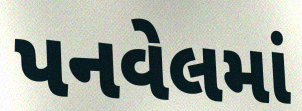
પનવેલમાં